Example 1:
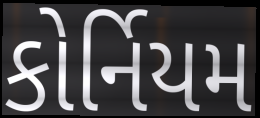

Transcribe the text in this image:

કોર્નિયમ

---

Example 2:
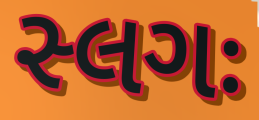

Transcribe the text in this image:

સ્લગઃ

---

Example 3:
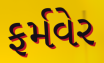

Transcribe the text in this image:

ફર્મવેર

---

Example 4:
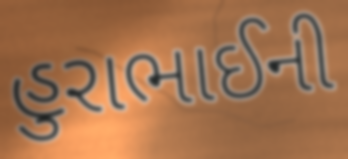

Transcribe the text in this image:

હુરાભાઈની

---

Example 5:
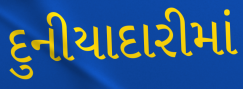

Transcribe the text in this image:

દુનીયાદારીમાં